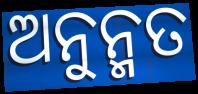
ଅନୁନ୍ମତ